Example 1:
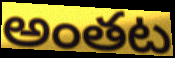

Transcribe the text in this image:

అంతట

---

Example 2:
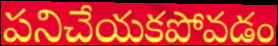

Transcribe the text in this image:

పనిచేయకపోవడం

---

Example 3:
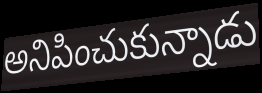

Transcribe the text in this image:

అనిపించుకున్నాడు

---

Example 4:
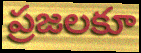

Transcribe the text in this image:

ప్రజలకూ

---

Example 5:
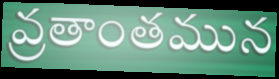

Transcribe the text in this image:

వ్రతాంతమున